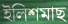
ইলিশমাছ